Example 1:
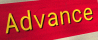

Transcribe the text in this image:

Advance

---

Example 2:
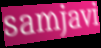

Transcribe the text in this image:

samjavi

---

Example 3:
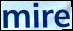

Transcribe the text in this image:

mire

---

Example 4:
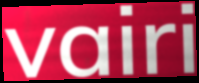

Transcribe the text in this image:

vairi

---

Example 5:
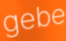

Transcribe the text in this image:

gebe